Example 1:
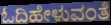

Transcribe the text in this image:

ಓದಿಹೇಳುವಂತೆ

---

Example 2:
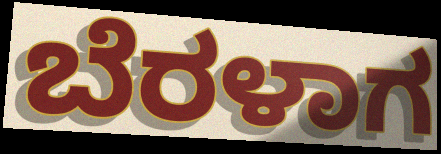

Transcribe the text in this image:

ಬೆರಳಾಗ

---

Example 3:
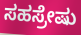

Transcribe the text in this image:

ಸಹಸ್ರೇಷು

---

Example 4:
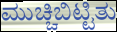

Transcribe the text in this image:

ಮುಚ್ಚಿಬಿಟ್ಟಿತು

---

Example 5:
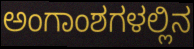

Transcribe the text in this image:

ಅಂಗಾಂಶಗಳಲ್ಲಿನ